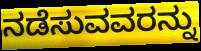
ನಡೆಸುವವರನ್ನು